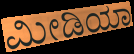
ಮೀಡಿಯಾ